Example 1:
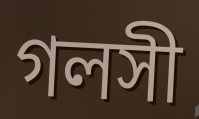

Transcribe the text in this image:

গলসী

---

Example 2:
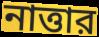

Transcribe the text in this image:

নাত্তার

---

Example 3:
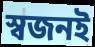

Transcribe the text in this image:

স্বজনই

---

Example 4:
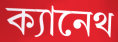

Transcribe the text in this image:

ক্যানেথ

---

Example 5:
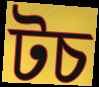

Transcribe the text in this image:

টচ